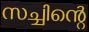
സച്ചിന്റെ